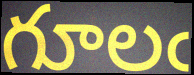
గూలఁ